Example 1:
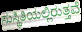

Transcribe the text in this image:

ಸುಸ್ಥಿತಿಯಲ್ಲಿರುತ್ತವೆ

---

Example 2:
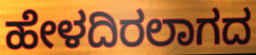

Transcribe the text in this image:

ಹೇಳದಿರಲಾಗದ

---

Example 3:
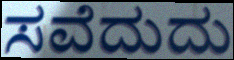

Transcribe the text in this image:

ಸವೆದುದು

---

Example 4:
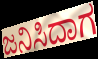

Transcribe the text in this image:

ಜನಿಸಿದಾಗ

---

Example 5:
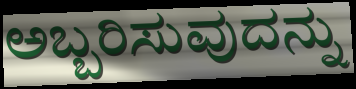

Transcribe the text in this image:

ಅಬ್ಬರಿಸುವುದನ್ನು